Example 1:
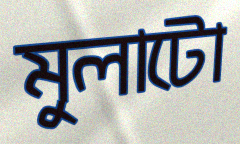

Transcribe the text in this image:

মুলাটো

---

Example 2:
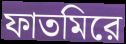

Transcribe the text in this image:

ফাতমিরে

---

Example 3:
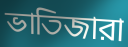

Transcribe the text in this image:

ভাতিজারা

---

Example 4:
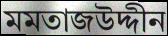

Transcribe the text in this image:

মমতাজউদ্দীন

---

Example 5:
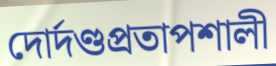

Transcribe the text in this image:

দোর্দণ্ডপ্রতাপশালী